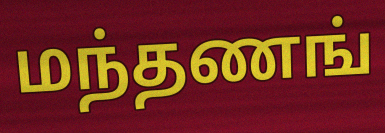
மந்தணங்